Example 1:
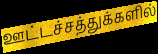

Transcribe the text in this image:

ஊட்டச்சத்துக்களில்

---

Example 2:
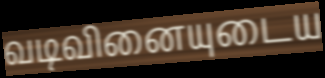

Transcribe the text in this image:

வடிவினையுடைய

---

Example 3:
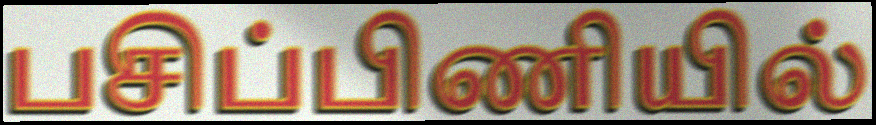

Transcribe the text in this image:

பசிப்பிணியில்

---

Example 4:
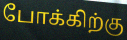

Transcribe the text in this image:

போக்கிற்கு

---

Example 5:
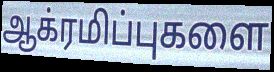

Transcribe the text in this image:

ஆக்ரமிப்புகளை